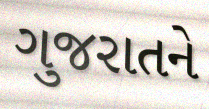
ગુજરાતને